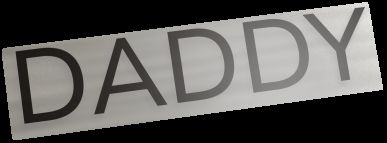
DADDY